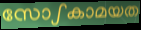
സോഽകാമയത